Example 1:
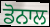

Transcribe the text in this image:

ਡੋਨਾਲ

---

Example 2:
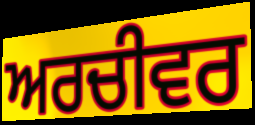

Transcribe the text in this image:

ਅਰਚੀਵਰ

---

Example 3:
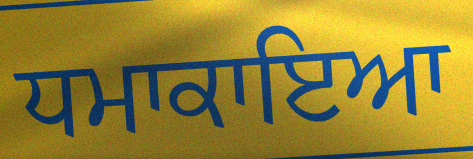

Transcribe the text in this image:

ਧਮਾਕਾਇਆ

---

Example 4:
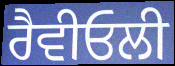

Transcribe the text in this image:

ਰੈਵੀਓਲੀ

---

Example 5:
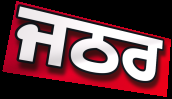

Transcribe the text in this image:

ਜਠਰ